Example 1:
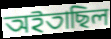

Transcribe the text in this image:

অইতাছিল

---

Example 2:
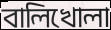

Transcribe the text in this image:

বালিখোলা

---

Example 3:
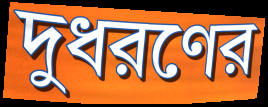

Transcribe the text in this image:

দুধরণের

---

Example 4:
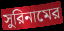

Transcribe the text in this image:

সুরিনামের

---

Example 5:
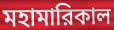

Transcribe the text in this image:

মহামারিকাল